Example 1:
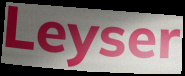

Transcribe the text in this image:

Leyser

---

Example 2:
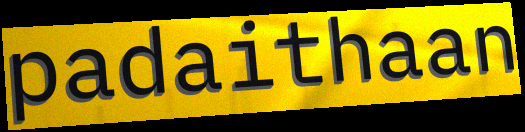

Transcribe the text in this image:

padaithaan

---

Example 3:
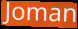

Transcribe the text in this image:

Joman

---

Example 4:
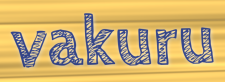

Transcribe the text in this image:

vakuru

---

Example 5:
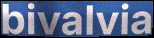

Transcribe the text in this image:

bivalvia